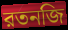
রতনজি